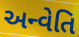
અન્વેતિ